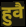
हुवै